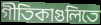
গীতিকাগুলিতে